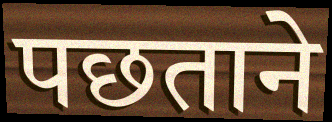
पछताने